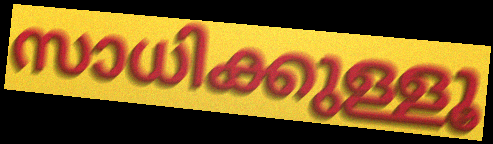
സാധിക്കുള്ളൂ